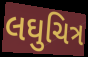
લઘુચિત્ર